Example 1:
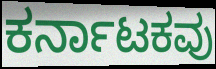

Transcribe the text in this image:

ಕರ್ನಾಟಕವು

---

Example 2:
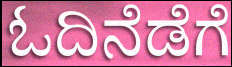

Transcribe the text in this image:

ಓದಿನೆಡೆಗೆ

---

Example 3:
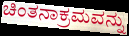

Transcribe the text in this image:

ಚಿಂತನಾಕ್ರಮವನ್ನು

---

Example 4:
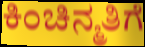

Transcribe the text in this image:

ಕಿಂಚಿನ್ಮತಿಗೆ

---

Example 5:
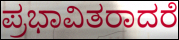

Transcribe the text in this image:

ಪ್ರಭಾವಿತರಾದರೆ